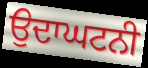
ਉਦਾਘਟਨੀ